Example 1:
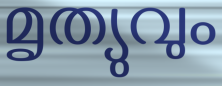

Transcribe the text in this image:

മൃത്യുവും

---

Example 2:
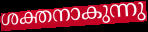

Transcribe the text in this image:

ശക്തനാകുന്നു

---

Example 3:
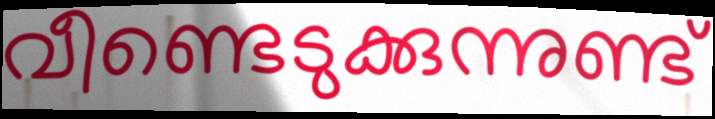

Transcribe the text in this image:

വീണ്ടെടുക്കുന്നുണ്ട്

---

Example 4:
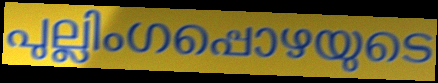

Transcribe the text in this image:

പുല്ലിംഗപ്പൊഴയുടെ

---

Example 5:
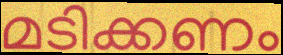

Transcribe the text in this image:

മടിക്കണം